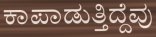
ಕಾಪಾಡುತ್ತಿದ್ದೆವು